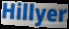
Hillyer